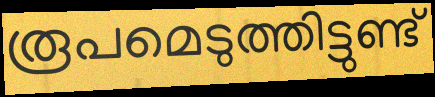
രൂപമെടുത്തിട്ടുണ്ട്